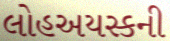
લોહઅયસ્કની